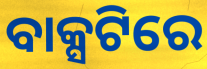
ବାକ୍ସଟିରେ